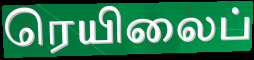
ரெயிலைப்